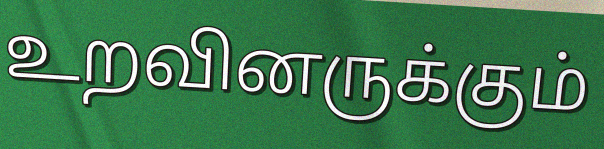
உறவினருக்கும்